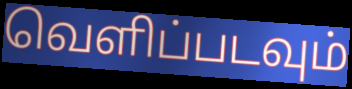
வெளிப்படவும்